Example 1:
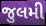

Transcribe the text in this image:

જુલમી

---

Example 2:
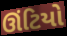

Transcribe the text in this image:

ઊંટિયો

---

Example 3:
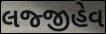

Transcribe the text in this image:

લજ્જીહેવ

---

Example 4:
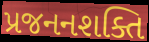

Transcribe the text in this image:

પ્રજનનશક્તિ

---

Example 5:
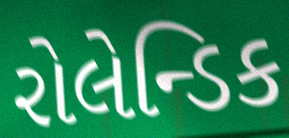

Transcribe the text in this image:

રોલેન્ડિક